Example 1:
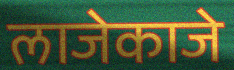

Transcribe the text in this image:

लाजेकाजे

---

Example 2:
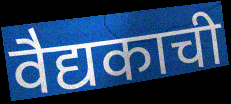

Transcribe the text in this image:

वैद्यकाची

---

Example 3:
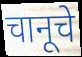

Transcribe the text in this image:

चानूचे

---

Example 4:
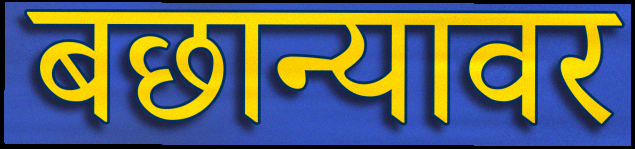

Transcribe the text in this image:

बछान्यावर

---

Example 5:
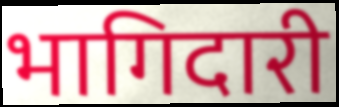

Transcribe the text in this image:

भागिदारी